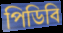
পিডিবি